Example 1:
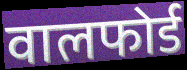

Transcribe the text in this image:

वालफोर्ड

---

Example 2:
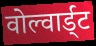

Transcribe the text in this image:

वोल्वार्ड्ट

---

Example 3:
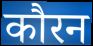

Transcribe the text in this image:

कौरन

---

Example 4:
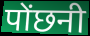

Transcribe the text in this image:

पोंछनी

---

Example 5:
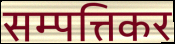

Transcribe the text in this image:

सम्पत्तिकर